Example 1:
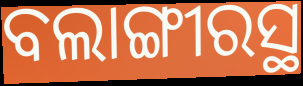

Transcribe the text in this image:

ବଲାଙ୍ଗୀରସ୍ଥ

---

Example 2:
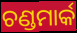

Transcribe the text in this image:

ଚଣ୍ଡମାର୍କ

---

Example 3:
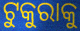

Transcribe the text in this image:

ଟୁକୁରାକୁ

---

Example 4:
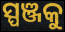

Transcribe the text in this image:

ସ୍ପଞ୍ଜକୁ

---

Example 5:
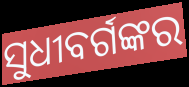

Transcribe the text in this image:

ସୁଧୀବର୍ଗଙ୍କର